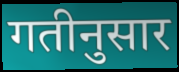
गतीनुसार